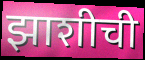
झाशीची